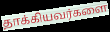
தாக்கியவர்களை